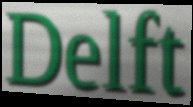
Delft